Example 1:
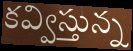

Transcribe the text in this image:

కవ్విస్తున్న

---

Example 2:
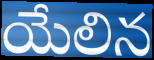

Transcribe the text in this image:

యేలిన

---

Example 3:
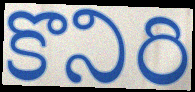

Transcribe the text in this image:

కొనిరి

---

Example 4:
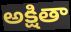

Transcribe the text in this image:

అక్షితా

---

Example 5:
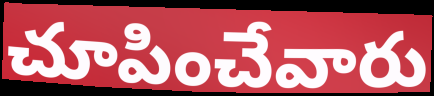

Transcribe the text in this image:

చూపించేవారు